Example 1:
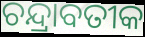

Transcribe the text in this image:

ଚନ୍ଦ୍ରାବତୀକ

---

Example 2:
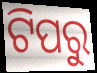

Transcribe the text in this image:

ଟିପରୁ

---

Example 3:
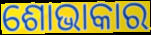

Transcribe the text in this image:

ଶୋଭାକାର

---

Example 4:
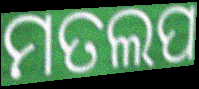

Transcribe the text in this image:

ମତଲପ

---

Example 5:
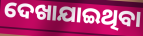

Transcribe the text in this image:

ଦେଖାଯାଇଥିବା